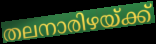
തലനാരിഴയ്ക്ക്